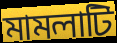
মামলাটি